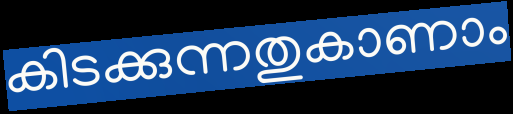
കിടക്കുന്നതുകാണാം